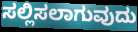
ಸಲ್ಲಿಸಲಾಗುವುದು